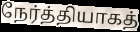
நேர்த்தியாகத்